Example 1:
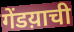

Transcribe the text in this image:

गेंडय़ाची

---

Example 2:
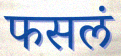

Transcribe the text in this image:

फसलं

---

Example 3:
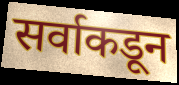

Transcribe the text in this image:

सर्वाकडून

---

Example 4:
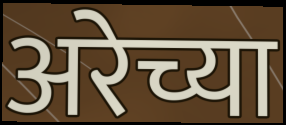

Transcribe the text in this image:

अरेच्या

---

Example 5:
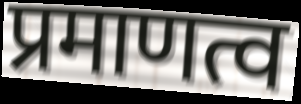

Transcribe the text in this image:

प्रमाणत्व